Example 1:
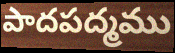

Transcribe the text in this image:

పాదపద్మము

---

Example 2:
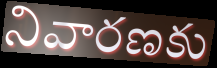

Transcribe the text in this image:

నివారణకు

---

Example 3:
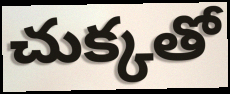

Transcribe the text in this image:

చుక్కతో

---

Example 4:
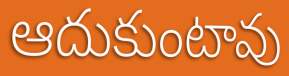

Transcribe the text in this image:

ఆదుకుంటావు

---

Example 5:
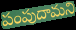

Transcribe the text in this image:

పంపుదామని